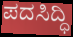
ಪದಸಿದ್ಧಿ